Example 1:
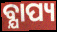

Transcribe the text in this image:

ବ୍ଯାପ୍ୟ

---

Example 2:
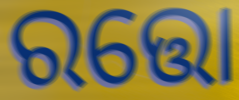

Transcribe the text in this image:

ରତ୍ତୋ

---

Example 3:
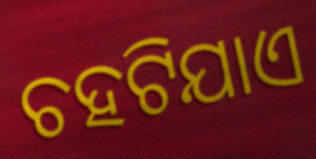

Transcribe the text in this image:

ଚହଟିଯାଏ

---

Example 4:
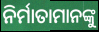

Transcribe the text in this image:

ନିର୍ମାତାମାନଙ୍କୁ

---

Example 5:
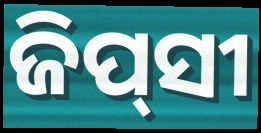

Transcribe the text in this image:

ଜିପ୍‍ସୀ